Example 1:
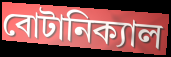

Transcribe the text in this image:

বোটানিক্যাল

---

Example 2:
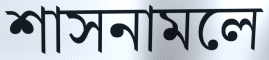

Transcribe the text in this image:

শাসনামলে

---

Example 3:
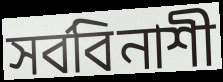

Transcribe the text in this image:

সর্ববিনাশী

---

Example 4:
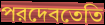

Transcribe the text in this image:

পরদেবতেতি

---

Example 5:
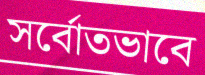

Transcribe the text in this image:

সর্বোতভাবে